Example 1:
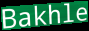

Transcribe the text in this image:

Bakhle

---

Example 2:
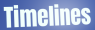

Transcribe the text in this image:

Timelines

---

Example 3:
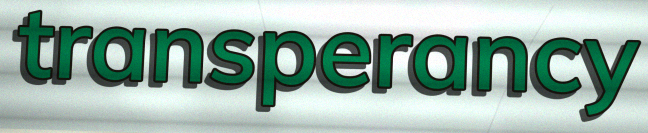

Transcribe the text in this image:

transperancy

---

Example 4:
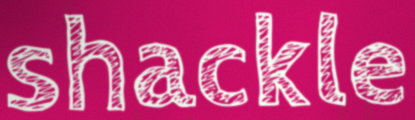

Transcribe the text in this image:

shackle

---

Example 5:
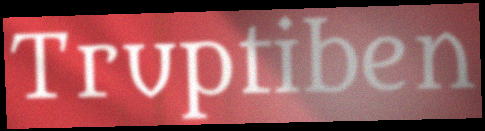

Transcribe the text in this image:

Truptiben